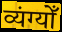
व्यंग्योँ